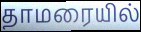
தாமரையில்